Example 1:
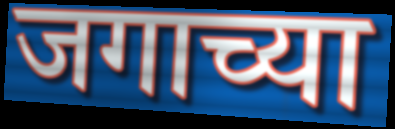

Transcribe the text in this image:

जगाच्या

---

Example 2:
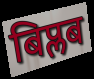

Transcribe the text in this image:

बिप्लब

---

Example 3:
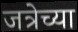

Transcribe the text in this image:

जत्रेच्या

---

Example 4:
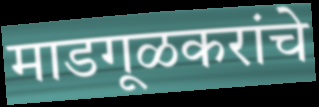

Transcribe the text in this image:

माडगूळकरांचे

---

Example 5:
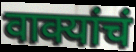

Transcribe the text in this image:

वाक्यांचं